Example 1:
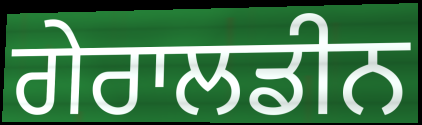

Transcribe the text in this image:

ਗੇਰਾਲਡੀਨ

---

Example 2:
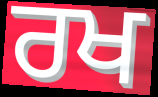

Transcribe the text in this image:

ਰਖ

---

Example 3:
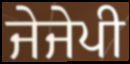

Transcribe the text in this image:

ਜੇਜੇਪੀ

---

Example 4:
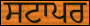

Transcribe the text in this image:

ਸਟਾਪਰ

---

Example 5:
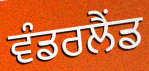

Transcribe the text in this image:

ਵੰਡਰਲੈਂਡ